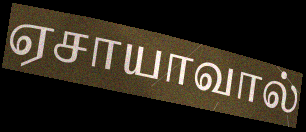
ஏசாயாவால்